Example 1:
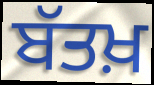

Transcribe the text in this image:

ਬੱਤਖ਼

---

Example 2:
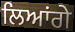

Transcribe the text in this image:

ਲਿਆਂਗੇ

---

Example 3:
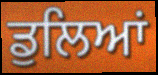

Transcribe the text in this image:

ਡੁਲਿਆਂ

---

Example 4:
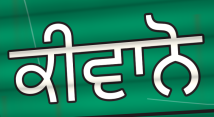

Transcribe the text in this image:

ਕੀਵਾਨੋ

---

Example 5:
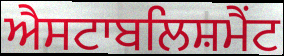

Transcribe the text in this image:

ਐਸਟਾਬਲਿਸ਼ਮੈਂਟ